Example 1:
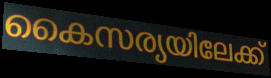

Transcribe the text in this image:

കൈസര്യയിലേക്ക്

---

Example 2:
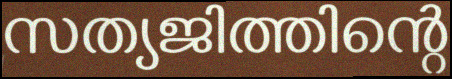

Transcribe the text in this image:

സത്യജിത്തിന്റെ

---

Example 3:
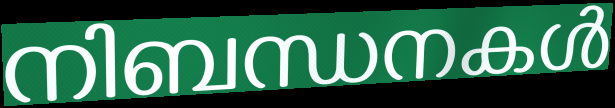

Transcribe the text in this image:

നിബന്ധനകൾ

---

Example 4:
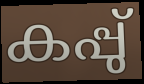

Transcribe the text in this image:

കപ്പു്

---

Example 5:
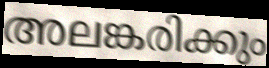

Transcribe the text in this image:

അലങ്കരിക്കും